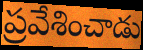
ప్రవేశించాడు